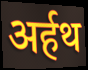
अर्हथ